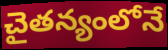
చైతన్యంలోనే